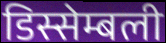
डिस्सेम्बली